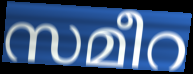
സമീറ